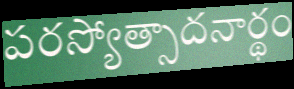
పరస్యోత్సాదనార్థం